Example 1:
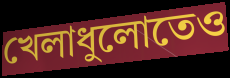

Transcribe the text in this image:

খেলাধুলোতেও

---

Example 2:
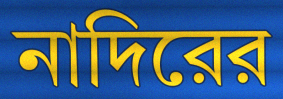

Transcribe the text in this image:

নাদিরের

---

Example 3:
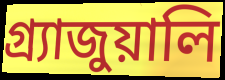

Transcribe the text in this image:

গ্র্যাজুয়ালি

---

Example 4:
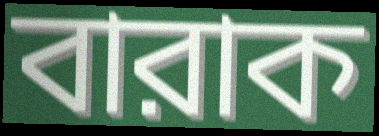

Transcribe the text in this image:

বারাক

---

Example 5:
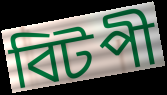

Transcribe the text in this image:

বিটপী